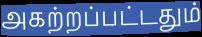
அகற்றப்பட்டதும்